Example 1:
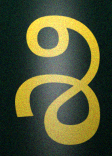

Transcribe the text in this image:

శి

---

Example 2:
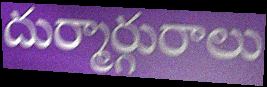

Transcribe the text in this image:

దుర్మార్గురాలు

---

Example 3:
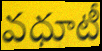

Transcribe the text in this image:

వధూటీ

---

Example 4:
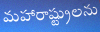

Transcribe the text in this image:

మహారాష్ట్రులను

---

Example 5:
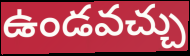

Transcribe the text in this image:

ఉండవచ్చు